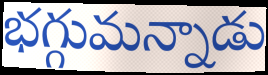
భగ్గుమన్నాడు